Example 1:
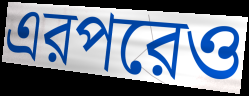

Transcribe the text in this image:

এরপরেও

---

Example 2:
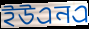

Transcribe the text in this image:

ইউএনএ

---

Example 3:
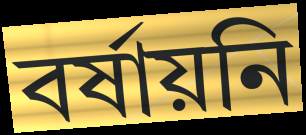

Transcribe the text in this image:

বর্ষায়নি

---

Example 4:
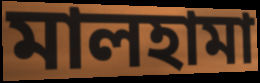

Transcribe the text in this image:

মালহামা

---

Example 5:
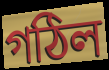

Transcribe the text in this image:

গঠিল